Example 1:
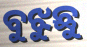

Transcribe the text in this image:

ବୁଝୁଛୁ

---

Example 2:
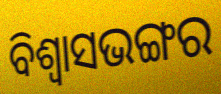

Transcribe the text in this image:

ବିଶ୍ଵାସଭଙ୍ଗର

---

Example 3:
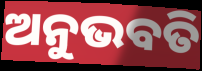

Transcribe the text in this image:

ଅନୁଭବତି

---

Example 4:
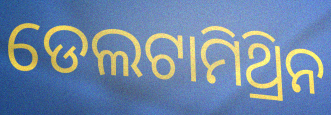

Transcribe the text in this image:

ଡେଲଟାମିଥ୍ରିନ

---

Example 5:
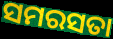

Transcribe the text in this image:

ସମରସତା